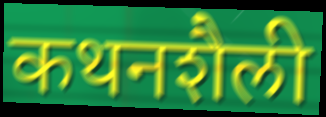
कथनशैली